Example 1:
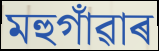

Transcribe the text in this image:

মহুগাঁৱাৰ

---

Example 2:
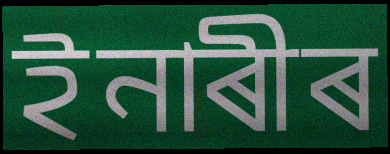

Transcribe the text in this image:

ইনাৰীৰ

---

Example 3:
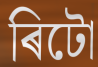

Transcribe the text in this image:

ৰিটো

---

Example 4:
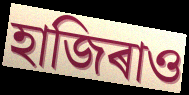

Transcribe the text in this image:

হাজিৰাও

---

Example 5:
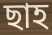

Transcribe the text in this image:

ছাহ